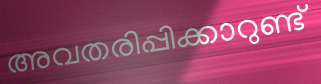
അവതരിപ്പിക്കാറുണ്ട്